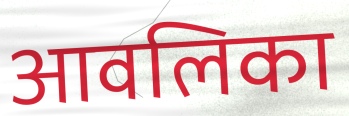
आवलिका